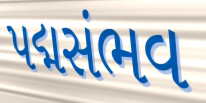
પદ્મસંભવ